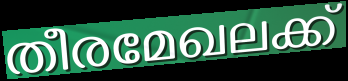
തീരമേഖലക്ക്